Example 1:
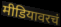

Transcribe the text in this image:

मीडियावरचं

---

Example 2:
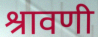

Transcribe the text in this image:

श्रावणी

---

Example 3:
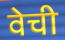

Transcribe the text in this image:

वेची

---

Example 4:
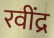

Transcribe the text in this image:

रवींद्र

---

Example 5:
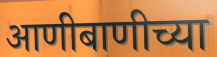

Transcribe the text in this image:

आणीबाणीच्या